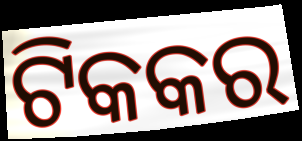
ଟିକକର